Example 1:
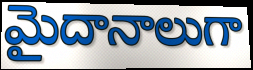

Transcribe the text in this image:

మైదానాలుగా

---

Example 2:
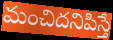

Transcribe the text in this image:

మంచిదనిపిస్తే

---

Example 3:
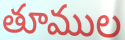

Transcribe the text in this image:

తూముల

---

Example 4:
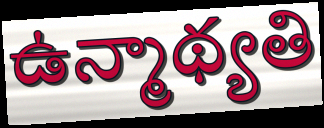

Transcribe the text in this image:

ఉన్మాథ్యతి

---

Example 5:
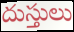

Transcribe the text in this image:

దుస్తులు